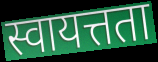
स्वायत्तता